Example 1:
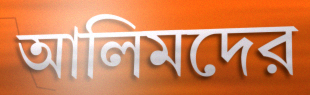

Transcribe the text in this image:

আলিমদের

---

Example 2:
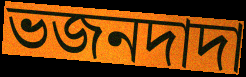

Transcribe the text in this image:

ভজনদাদা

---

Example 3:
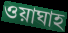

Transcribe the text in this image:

ওয়াঘাহ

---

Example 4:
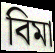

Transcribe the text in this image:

বিমা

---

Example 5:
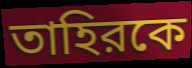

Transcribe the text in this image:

তাহিরকে